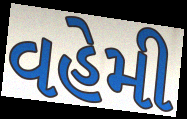
વહેમી